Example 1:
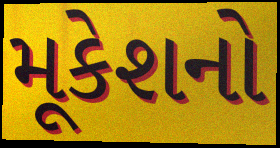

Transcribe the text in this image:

મૂકેશનો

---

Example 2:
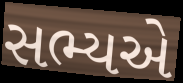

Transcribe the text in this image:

સભ્યએ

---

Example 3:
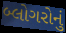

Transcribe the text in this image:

બ્લોગરોનું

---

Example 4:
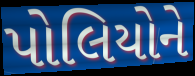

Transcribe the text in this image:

પોલિયોને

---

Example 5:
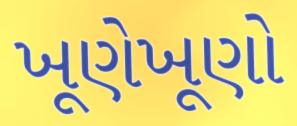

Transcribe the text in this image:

ખૂણેખૂણો